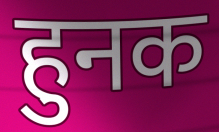
हुनक